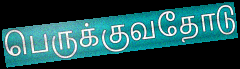
பெருக்குவதோடு